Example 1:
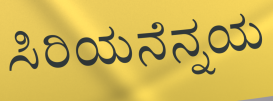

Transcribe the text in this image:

ಸಿರಿಯನೆನ್ನಯ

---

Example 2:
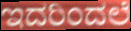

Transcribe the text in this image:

ಇದರಿಂದಲೆ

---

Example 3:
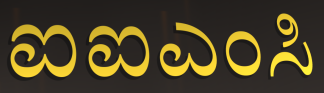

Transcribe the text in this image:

ಐಐಎಂಸಿ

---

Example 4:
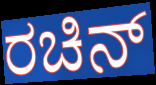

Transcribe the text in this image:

ರಚಿನ್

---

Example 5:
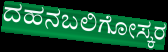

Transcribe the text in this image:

ದಹನಬಲಿಗೋಸ್ಕರ